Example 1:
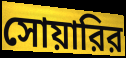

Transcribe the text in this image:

সোয়ারির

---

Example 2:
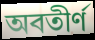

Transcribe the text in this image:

অবতীর্ণ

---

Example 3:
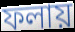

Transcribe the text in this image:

ফলায়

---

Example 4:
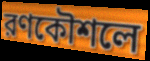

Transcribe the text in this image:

রণকৌশলে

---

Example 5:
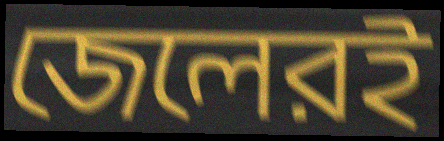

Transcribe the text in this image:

জেলেরই